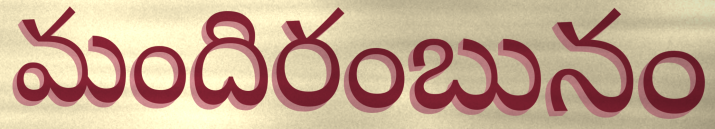
మందిరంబునం